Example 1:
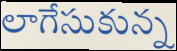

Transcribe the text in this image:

లాగేసుకున్న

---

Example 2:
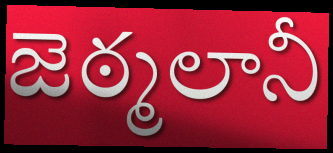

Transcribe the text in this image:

జెఠ్మలానీ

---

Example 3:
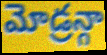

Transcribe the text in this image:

మోడ్రన్గా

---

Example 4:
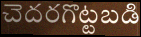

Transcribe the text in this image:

చెదరగొట్టబడి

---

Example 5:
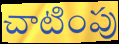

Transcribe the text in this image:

చాటింపు